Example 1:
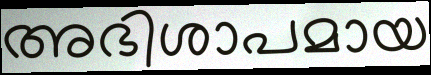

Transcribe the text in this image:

അഭിശാപമായ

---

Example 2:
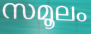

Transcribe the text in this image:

സമൂലം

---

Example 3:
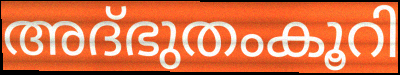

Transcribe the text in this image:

അദ്ഭുതംകൂറി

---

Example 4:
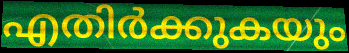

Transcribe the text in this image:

എതിർക്കുകയും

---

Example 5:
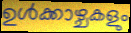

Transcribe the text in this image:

ഉൾക്കാഴ്ചകളും